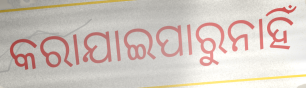
କରାଯାଇପାରୁନାହିଁ